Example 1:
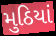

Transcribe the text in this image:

મુઠિયાં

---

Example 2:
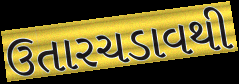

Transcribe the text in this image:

ઉતારચડાવથી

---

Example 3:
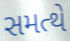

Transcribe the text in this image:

સમત્થે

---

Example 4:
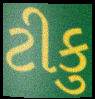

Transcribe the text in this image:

ટીકુ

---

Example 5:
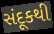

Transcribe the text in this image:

સંદૂકથી